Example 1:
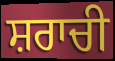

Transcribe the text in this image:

ਸ਼ਰਾਚੀ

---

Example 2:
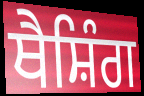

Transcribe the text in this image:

ਥੈਸ਼ਿੰਗ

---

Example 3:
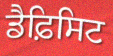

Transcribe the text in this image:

ਡੈਫ਼ਿਸਿਟ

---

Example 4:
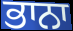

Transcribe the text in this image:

ਭਾਨਾ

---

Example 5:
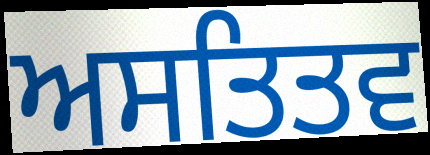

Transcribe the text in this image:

ਅਸਤਿਤਵ